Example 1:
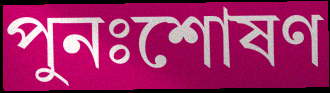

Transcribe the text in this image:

পুনঃশোষণ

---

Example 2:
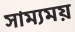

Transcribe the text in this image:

সাম্যময়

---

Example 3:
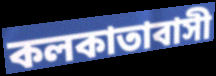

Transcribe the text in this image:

কলকাতাবাসী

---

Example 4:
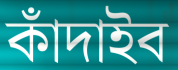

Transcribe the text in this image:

কাঁদাইব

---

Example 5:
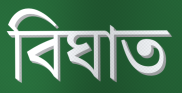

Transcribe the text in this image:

বিঘাত